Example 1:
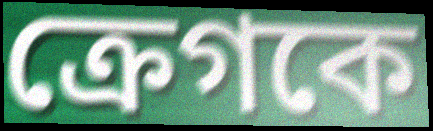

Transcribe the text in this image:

ক্রেগকে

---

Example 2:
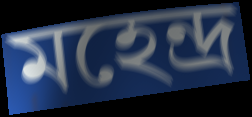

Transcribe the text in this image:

মহেন্দ্র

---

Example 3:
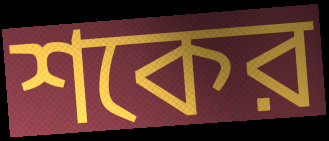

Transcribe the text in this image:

শকের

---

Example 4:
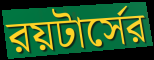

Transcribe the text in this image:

রয়টার্সের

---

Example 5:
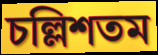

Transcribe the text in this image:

চল্লিশতম